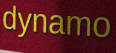
dynamo